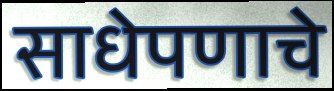
साधेपणाचे